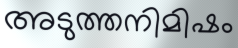
അടുത്തനിമിഷം